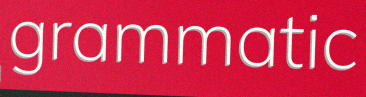
grammatic